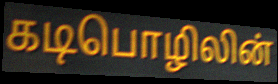
கடிபொழிலின்